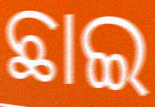
ଛାଇ